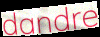
dandre